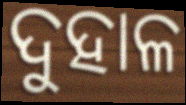
ଦୁହାଳ